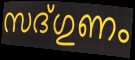
സദ്ഗുണം